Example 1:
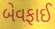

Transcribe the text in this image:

બેવફાઈ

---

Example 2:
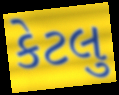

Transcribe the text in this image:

કેટલુ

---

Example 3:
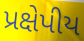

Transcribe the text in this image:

પ્રક્ષેપીય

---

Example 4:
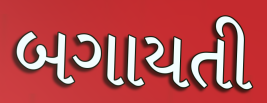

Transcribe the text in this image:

બગાયતી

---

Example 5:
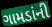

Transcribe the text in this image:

ગામડાંની